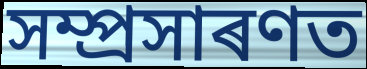
সম্প্ৰসাৰণত